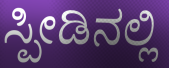
ಸ್ಪೀಡಿನಲ್ಲಿ